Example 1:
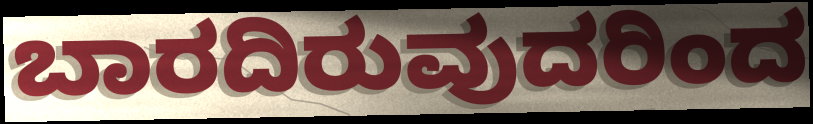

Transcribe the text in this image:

ಬಾರದಿರುವುದರಿಂದ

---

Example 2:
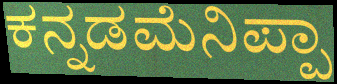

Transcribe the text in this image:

ಕನ್ನಡಮೆನಿಪ್ಪಾ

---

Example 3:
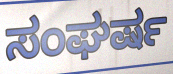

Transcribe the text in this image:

ಸಂಘರ್ಷ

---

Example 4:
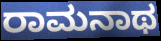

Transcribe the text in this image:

ರಾಮನಾಥ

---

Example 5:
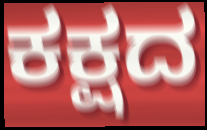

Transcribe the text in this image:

ಕಕ್ಷದ